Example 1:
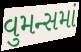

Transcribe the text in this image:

વુમન્સમાં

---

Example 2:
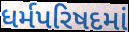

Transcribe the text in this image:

ધર્મપરિષદમાં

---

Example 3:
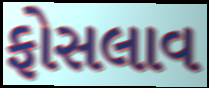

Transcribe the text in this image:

ફોસલાવ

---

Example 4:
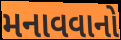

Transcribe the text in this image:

મનાવવાનો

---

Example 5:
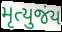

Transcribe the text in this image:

મૃત્યુજંય